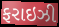
ફરાઇઝી